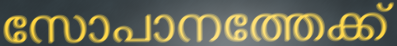
സോപാനത്തേക്ക്